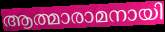
ആത്മാരാമനായി